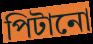
পিটানো